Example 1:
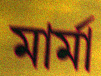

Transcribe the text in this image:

মার্মা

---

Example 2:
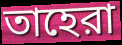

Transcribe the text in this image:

তাহেরা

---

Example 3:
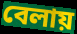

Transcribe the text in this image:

বেলায়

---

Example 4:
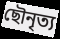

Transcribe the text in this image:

ছৌনৃত্য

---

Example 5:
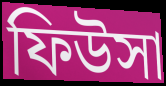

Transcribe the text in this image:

ফিউসা